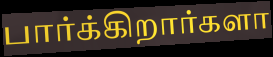
பார்க்கிறார்களா